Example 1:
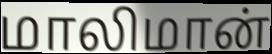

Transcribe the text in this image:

மாலிமான்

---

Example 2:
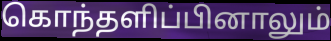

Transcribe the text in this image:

கொந்தளிப்பினாலும்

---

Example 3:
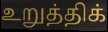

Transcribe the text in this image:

உறுத்திக்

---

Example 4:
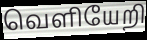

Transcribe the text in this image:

வெளியேறி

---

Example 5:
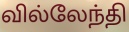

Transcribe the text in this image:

வில்லேந்தி